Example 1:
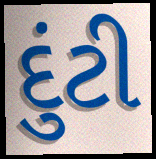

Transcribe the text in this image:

દુંટી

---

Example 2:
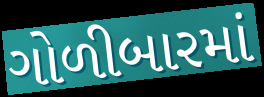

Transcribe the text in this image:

ગોળીબારમાં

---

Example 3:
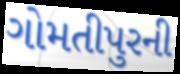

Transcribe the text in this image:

ગોમતીપુરની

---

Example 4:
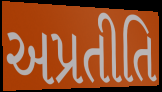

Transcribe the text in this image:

અપ્રતીતિ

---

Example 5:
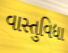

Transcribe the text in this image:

વાસ્તુવિદ્યા